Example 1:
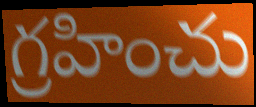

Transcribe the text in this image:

గ్రహించు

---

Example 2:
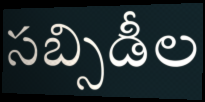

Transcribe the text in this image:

సబ్సిడీల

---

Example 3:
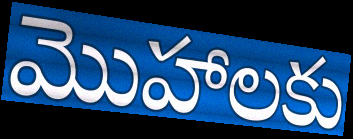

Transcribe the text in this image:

మొహాలకు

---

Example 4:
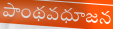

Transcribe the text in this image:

పాంథవధూజన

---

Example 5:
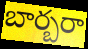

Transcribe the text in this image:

బార్బరా